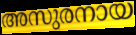
അസുരനായ